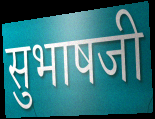
सुभाषजी